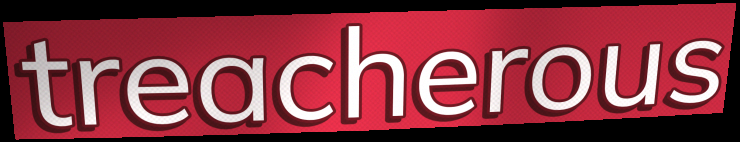
treacherous